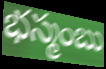
భస్మంబు